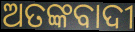
ଅତଙ୍କବାଦୀ